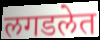
लगडलेत